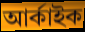
আর্কাইক